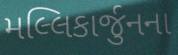
મલ્લિકાર્જુનના